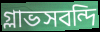
গ্লাভসবন্দি